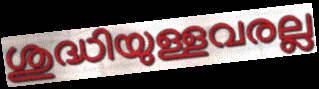
ശുദ്ധിയുള്ളവരല്ല